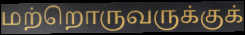
மற்றொருவருக்குக்